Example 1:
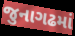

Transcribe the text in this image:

જુનાગઢમાં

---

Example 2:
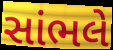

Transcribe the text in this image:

સાંભલે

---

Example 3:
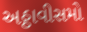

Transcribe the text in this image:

અઠ્ઠાવીસમો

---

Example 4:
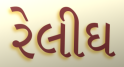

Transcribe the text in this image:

રેલીઘ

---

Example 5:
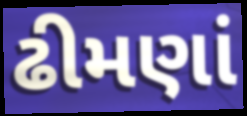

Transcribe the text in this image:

ઢીમણાં